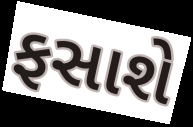
ફસાશે